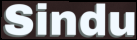
Sindu